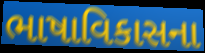
ભાષાવિકાસના